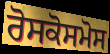
ਰੋਸਕੋਸਮੋਸ